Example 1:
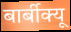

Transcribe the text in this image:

बार्बीक्यू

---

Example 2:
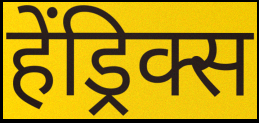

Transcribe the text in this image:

हेंड्रिक्स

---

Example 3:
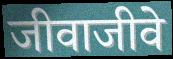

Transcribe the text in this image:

जीवाजीवे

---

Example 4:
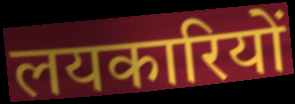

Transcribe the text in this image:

लयकारियों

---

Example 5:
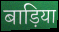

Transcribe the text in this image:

बाड़िया